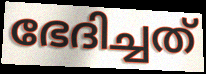
ഭേദിച്ചത്